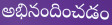
అభినందించడం